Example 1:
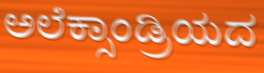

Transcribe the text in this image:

ಅಲೆಕ್ಸಾಂಡ್ರಿಯದ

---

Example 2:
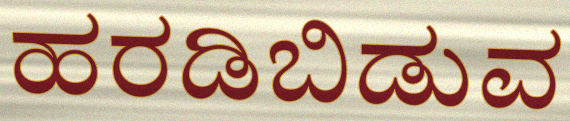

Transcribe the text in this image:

ಹರಡಿಬಿಡುವ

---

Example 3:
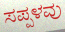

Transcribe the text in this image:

ಸಪ್ಪಳವು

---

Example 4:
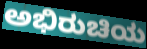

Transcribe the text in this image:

ಅಭಿರುಚಿಯ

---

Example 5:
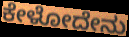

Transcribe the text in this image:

ಕೇಳೋದೇನು